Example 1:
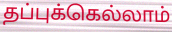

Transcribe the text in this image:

தப்புக்கெல்லாம்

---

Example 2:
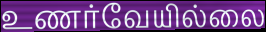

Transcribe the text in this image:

உணர்வேயில்லை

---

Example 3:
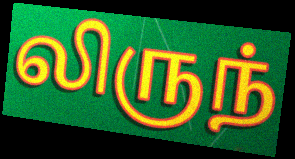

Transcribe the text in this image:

லிருந்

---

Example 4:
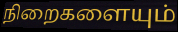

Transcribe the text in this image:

நிறைகளையும்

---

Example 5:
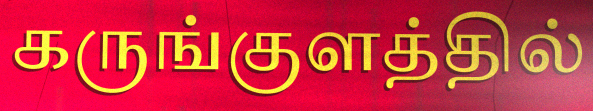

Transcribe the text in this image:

கருங்குளத்தில்